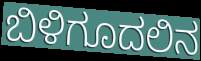
ಬಿಳಿಗೂದಲಿನ